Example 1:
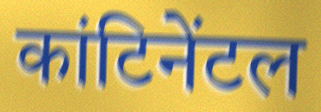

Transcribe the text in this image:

कांटिनेंटल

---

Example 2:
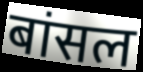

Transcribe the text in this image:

बांसल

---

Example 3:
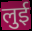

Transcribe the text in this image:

लुई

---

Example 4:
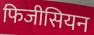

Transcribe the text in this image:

फिजीसियन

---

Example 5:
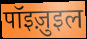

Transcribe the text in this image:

पॉइज़ुइल